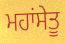
ਮਹਾਂਸੇਤੂ